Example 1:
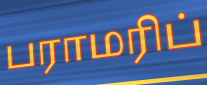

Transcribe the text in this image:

பராமரிப்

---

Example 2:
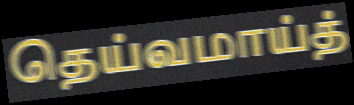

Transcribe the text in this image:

தெய்வமாய்த்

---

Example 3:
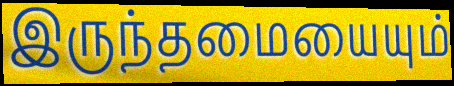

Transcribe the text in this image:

இருந்தமையையும்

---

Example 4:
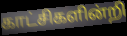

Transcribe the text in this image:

காட்சிகளின்றி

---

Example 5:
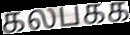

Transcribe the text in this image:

கலபகக